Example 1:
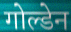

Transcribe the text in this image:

गोल्डेन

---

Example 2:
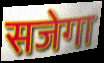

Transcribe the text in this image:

सजेगा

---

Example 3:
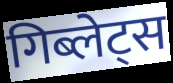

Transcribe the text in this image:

गिब्लेट्स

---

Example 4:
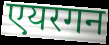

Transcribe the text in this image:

एयरगन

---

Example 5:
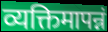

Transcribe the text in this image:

व्यक्तिमापन्नं